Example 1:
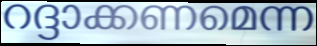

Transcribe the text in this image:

റദ്ദാക്കണമെന്ന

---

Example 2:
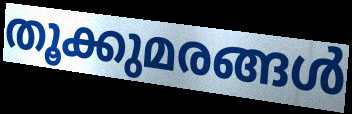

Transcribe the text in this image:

തൂക്കുമരങ്ങൾ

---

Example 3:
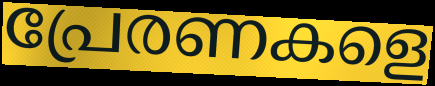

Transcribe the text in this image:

പ്രേരണകളെ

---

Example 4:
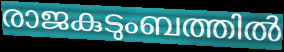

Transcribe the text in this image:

രാജകുടുംബത്തിൽ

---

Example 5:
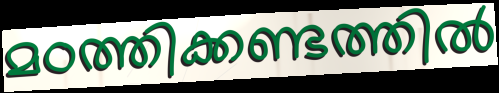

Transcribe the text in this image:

മഠത്തിക്കണ്ടത്തിൽ